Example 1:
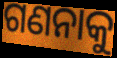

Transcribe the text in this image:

ଗଣନାକୁ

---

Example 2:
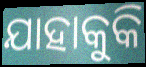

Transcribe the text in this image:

ଯାହାକୁକି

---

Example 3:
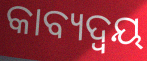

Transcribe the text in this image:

କାବ୍ୟଦ୍ୱୟ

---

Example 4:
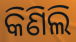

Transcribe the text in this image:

କିଣିଲି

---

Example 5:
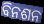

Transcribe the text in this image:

ବିନଶନ